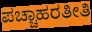
ಪಚ್ಚಾಹರತೀತಿ